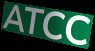
ATCC